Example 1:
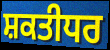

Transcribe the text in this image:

ਸ਼ਕਤੀਧਰ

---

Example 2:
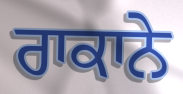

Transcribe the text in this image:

ਰਾਕਾਨੇ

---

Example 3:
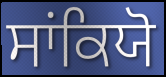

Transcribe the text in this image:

ਸਾਂਕਿਯੋ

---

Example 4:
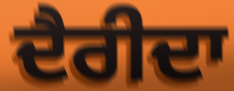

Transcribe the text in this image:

ਦੈਰੀਦਾ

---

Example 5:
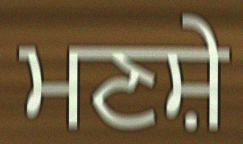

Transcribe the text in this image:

ਮਣਸ਼ੇ